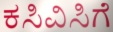
ಕಸಿವಿಸಿಗೆ